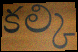
కల్కి